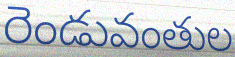
రెండువంతుల